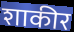
शाकीर